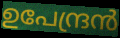
ഉപേന്ദ്രൻ